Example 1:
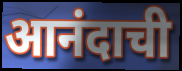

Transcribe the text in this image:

आनंदाची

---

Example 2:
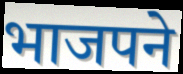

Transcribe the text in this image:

भाजपने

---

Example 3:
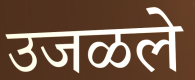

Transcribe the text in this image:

उजळले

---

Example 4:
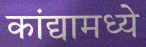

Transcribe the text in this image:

कांद्यामध्ये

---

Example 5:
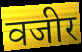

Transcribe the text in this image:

वजीर